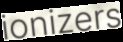
ionizers